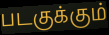
படகுக்கும்